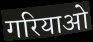
गरियाओ